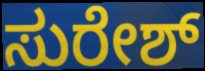
ಸುರೇಶ್